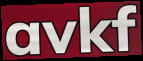
avkf